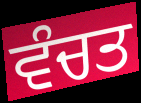
ਵੰਚਤ